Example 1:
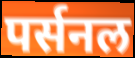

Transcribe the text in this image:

पर्सनल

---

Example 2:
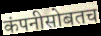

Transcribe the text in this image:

कंपनीसोबतच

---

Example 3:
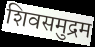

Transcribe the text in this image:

शिवसमुद्रम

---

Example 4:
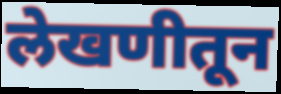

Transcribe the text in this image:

लेखणीतून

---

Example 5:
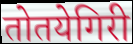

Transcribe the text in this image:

तोतयेगिरी